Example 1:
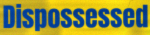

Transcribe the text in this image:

Dispossessed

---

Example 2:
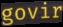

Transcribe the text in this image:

govir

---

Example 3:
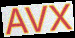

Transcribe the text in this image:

AVX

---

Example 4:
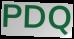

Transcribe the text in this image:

PDQ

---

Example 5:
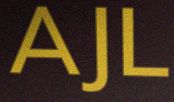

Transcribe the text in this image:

AJL